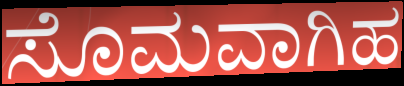
ಸೊಮವಾಗಿಹ